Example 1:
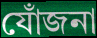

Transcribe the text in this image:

যোঁজনা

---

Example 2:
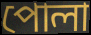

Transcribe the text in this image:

পোলা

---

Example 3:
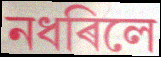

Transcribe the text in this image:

নধৰিলে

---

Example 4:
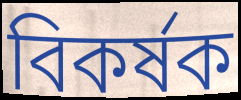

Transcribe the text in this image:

বিকৰ্ষক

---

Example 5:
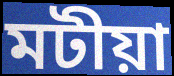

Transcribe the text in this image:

মটীয়া